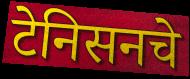
टेनिसनचे